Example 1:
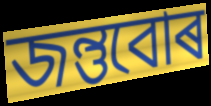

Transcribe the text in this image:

জন্তুবোৰ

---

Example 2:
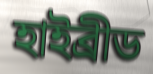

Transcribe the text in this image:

হাইব্ৰীড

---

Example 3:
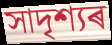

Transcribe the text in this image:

সাদৃশ্যৰ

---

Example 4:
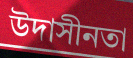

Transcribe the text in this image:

উদাসীনতা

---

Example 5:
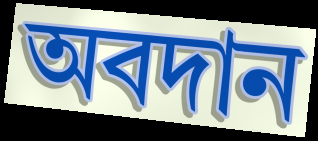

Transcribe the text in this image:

অবদান